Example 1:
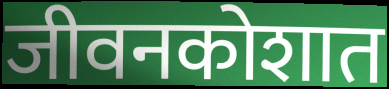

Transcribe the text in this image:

जीवनकोशात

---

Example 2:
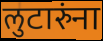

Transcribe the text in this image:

लुटारुंना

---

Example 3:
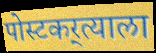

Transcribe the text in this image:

पोस्टकर्त्याला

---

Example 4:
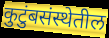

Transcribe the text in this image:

कुटुंबसंस्थेतील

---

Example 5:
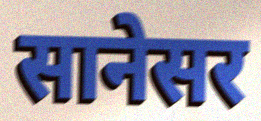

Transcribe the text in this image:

सानेसर